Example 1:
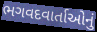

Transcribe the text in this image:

ભગવદવાર્તાઓનું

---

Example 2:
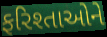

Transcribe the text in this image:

ફરિશ્તાઓને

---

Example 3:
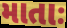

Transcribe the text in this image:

માતાઃ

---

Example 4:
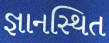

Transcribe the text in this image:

જ્ઞાનસ્થિત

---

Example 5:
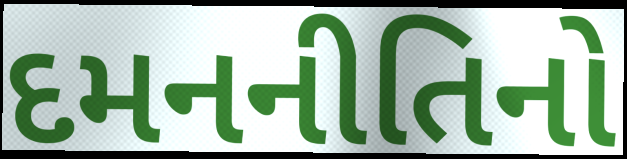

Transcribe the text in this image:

દમનનીતિનો